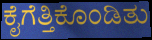
ಕೈಗೆತ್ತಿಕೊಂಡಿತು